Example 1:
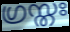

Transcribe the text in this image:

ഗ്രസ്തഃ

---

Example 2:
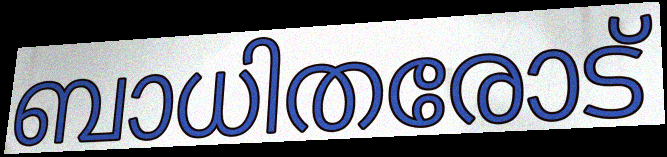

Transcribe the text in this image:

ബാധിതരോട്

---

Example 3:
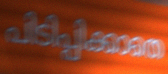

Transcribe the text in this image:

പിടിപ്പിക്കാതെ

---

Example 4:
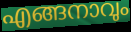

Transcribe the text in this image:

എങ്ങനാവും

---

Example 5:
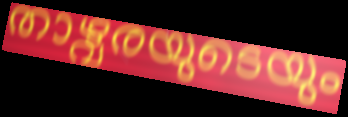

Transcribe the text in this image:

താഴ്വരയുടെയും